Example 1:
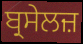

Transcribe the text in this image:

ਬ੍ਰਸੇਲਜ਼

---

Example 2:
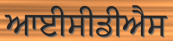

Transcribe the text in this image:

ਆਈਸੀਡੀਐਸ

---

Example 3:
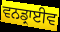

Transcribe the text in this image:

ਵਨਡ੍ਰਾਈਵ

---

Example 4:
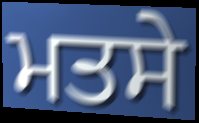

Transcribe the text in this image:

ਮਤਸੇ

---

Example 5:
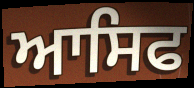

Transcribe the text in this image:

ਆਸਿਫ